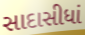
સાદાસીધાં